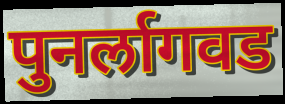
पुनर्लागवड